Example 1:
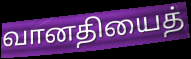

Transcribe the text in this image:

வானதியைத்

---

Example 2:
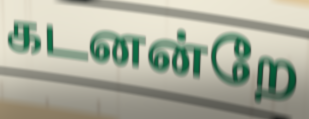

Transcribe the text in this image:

கடனன்றே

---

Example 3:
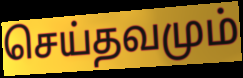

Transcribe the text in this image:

செய்தவமும்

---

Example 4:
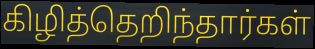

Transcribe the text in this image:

கிழித்தெறிந்தார்கள்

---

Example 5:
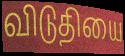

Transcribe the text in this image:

விடுதியை